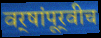
वर्षांपूर्वीच